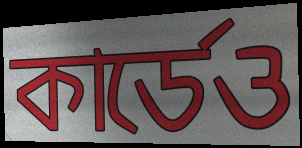
কার্ডেও